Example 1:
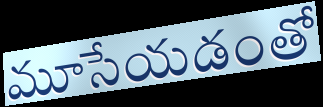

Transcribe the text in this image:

మూసేయడంతో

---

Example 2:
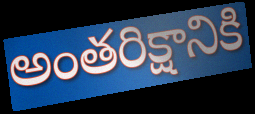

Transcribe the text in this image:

అంతరిక్షానికి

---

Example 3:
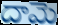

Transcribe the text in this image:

దామె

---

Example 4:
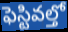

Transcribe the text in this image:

ఫెస్టివల్తో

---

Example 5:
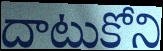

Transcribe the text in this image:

దాటుకోని